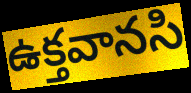
ఉక్తవానసి